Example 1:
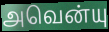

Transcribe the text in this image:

அவென்யு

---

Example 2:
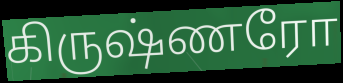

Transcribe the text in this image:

கிருஷ்ணரோ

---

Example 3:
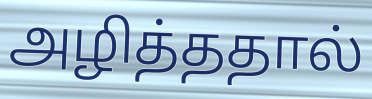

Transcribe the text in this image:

அழித்ததால்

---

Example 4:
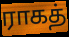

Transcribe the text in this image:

ராகத்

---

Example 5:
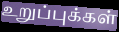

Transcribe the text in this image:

உறுப்புக்கள்